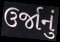
ઉર્જાનું